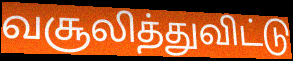
வசூலித்துவிட்டு